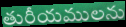
తురీయములను